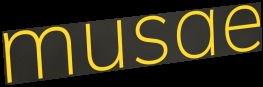
musae